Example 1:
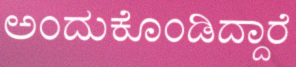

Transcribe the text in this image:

ಅಂದುಕೊಂಡಿದ್ದಾರೆ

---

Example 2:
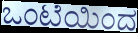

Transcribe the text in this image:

ಒಂಟೆಯಿಂದ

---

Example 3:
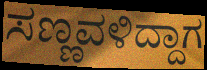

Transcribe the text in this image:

ಸಣ್ಣವಳಿದ್ದಾಗ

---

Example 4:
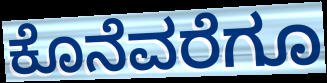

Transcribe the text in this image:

ಕೊನೆವರೆಗೂ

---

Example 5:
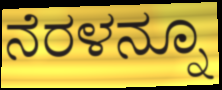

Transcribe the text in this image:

ನೆರಳನ್ನೂ